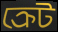
ক্রেট